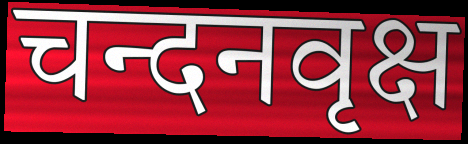
चन्दनवृक्ष